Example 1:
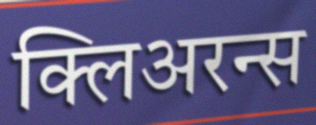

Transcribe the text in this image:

क्लिअरन्स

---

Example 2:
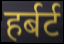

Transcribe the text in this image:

हर्बर्ट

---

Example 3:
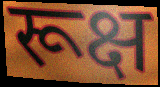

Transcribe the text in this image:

रूक्ष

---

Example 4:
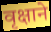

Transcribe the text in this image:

वृक्षाने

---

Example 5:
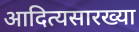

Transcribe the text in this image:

आदित्यसारख्या